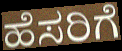
ಹೆಸರಿಗೆ